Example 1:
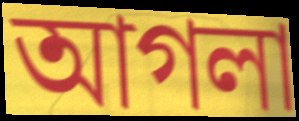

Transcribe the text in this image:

আগলা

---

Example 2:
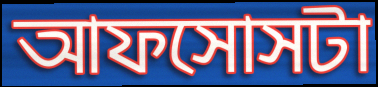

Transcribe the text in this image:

আফসোসটা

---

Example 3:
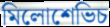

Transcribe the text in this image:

মিলোশেভিচ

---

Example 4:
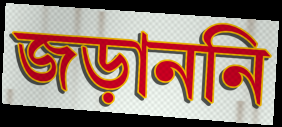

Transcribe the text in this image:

জড়াননি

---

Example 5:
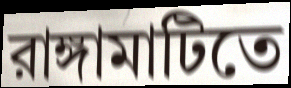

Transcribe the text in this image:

রাঙ্গামাটিতে